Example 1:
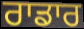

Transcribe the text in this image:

ਰਾਡਾਰ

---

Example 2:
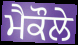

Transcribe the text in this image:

ਮੈਕੌਲੇ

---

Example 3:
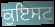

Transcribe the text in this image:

ਕੁਇਸਟ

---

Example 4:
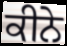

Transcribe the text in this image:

ਕੀਨੇ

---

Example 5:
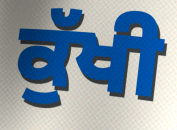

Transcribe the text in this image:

ਕੁੱਖੀ